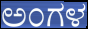
ಅಂಗಳ